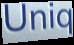
Uniq